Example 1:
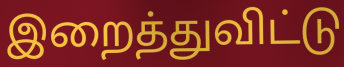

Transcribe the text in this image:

இறைத்துவிட்டு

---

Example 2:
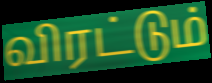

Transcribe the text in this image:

விரட்டும்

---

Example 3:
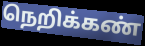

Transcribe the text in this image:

நெறிக்கண்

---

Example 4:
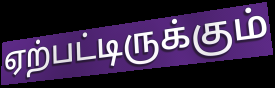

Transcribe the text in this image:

ஏற்பட்டிருக்கும்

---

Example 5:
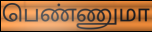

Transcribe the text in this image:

பெண்ணுமா